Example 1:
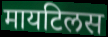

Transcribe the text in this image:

मायटिलस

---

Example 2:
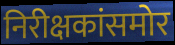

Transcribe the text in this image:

निरीक्षकांसमोर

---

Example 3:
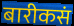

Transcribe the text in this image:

बारीकसं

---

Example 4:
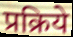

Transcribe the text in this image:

प्रक्रिये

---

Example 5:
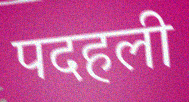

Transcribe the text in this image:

पदहली